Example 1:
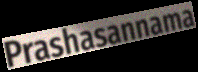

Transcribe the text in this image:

Prashasannama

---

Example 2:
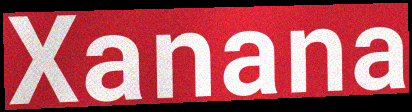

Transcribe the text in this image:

Xanana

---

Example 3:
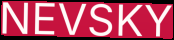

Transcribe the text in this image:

NEVSKY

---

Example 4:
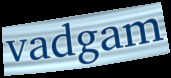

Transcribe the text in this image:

vadgam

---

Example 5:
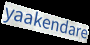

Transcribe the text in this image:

yaakendare